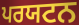
ਪਰਯਟਨ